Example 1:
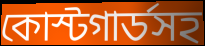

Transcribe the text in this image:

কোস্টগার্ডসহ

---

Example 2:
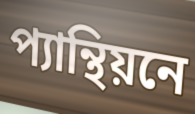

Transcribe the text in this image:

প্যান্থিয়নে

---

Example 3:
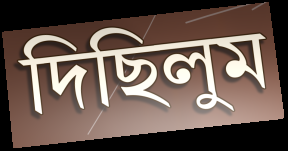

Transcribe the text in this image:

দিছিলুম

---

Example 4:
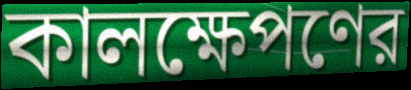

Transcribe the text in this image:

কালক্ষেপণের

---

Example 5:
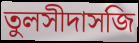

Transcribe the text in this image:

তুলসীদাসজি